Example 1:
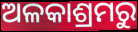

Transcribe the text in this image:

ଅଳକାଶ୍ରମରୁ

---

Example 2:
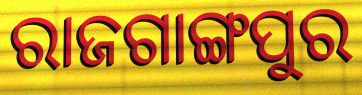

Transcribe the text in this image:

ରାଜଗାଙ୍ଗପୁର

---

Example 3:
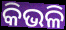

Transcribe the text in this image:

କିଭଳି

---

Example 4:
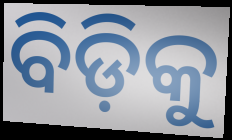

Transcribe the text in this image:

ବିଡ଼ିକୁ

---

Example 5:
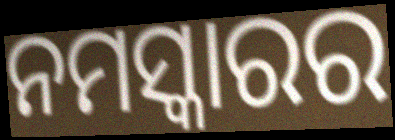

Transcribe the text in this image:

ନମସ୍କାରର